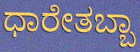
ಧಾರೇತಬ್ಬಾ